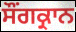
ਸੌਂਗਕ੍ਰਾਨ